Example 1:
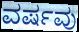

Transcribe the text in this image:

ವರ್ಷವು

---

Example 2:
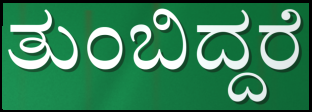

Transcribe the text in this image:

ತುಂಬಿದ್ದರೆ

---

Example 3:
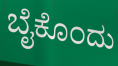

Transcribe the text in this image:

ಬೈಕೊಂದು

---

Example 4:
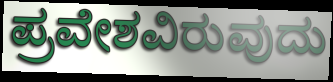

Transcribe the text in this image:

ಪ್ರವೇಶವಿರುವುದು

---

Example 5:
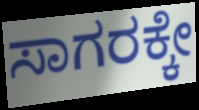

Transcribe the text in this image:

ಸಾಗರಕ್ಕೇ